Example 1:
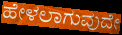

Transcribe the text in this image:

ಹೇಳಲಾಗುವುದೇ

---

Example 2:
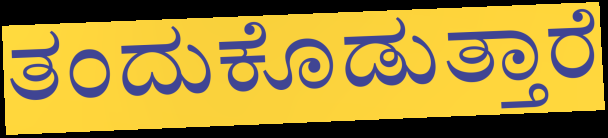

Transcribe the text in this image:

ತಂದುಕೊಡುತ್ತಾರೆ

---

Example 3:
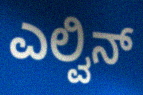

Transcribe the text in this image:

ಎಲ್ವಿನ್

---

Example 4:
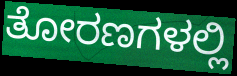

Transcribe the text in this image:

ತೋರಣಗಳಲ್ಲಿ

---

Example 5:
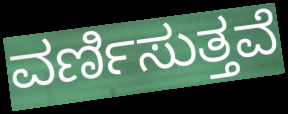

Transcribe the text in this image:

ವರ್ಣಿಸುತ್ತವೆ